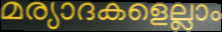
മര്യാദകളെല്ലാം